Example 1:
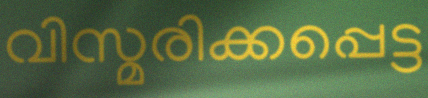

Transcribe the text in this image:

വിസ്മരിക്കപ്പെട്ട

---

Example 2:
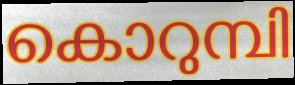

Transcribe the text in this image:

കൊറുമ്പി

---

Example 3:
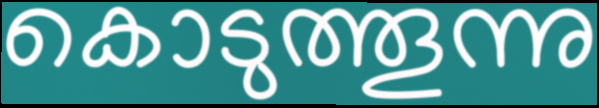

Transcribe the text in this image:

കൊടുത്തൂന്നു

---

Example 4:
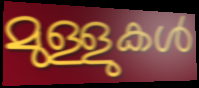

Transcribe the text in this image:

മുള്ളുകൾ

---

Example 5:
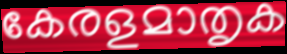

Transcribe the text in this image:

കേരളമാതൃക